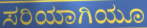
ಸರಿಯಾಗಿಯೂ